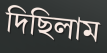
দিছিলাম